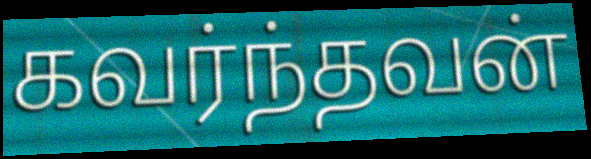
கவர்ந்தவன்